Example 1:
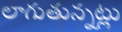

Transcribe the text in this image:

లాగుతున్నట్లు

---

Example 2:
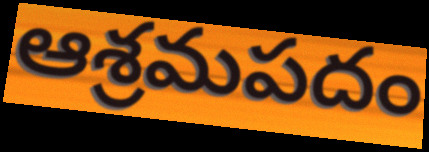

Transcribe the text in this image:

ఆశ్రమపదం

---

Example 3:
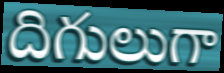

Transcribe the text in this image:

దిగులుగా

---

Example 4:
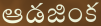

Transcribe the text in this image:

ఆడజింక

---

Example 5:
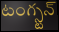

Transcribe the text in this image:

టంగ్స్టన్